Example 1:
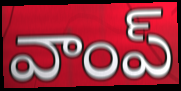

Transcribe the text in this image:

వాంప్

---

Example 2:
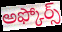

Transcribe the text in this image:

అఫ్కోర్స్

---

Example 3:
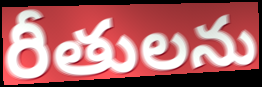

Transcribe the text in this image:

రీతులను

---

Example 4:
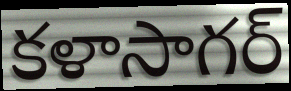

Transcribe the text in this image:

కళాసాగర్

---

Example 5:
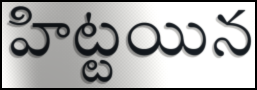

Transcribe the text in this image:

హిట్టయిన